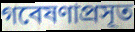
গবেষণাপ্রসূত